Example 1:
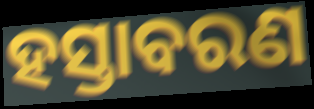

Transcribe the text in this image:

ହସ୍ତାବରଣ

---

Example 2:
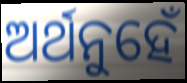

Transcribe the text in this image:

ଅର୍ଥନୁହେଁ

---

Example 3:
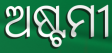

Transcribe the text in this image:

ଅଷ୍ଟମୀ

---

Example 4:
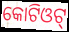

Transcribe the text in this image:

କୋଟିଓଟ୍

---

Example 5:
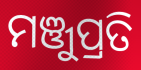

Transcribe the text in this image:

ମଞ୍ଜୁପ୍ରତି